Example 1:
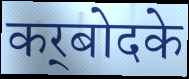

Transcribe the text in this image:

कर्बोदके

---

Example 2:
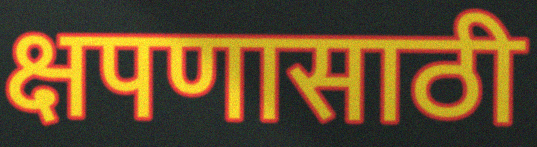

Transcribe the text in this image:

क्षपणासाठी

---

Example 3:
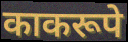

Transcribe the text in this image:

काकरूपे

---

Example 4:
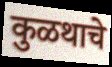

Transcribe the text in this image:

कुळथाचे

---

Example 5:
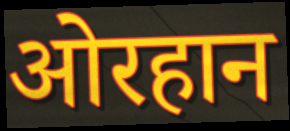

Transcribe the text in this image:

ओरहान